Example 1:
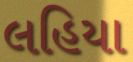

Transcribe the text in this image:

લહિયા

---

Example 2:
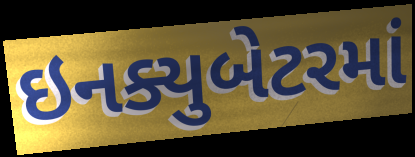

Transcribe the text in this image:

ઇનક્યુબેટરમાં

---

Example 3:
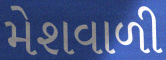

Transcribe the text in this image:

મેશવાળી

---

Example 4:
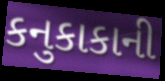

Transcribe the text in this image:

કનુકાકાની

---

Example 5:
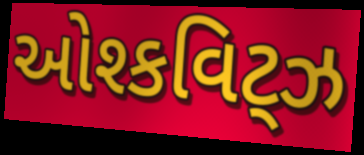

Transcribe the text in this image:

ઓશ્કવિટ્ઝ